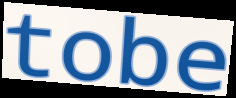
tobe